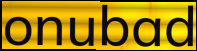
onubad